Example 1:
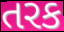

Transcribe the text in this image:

તરક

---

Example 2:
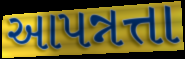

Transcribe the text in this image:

આપન્નત્તા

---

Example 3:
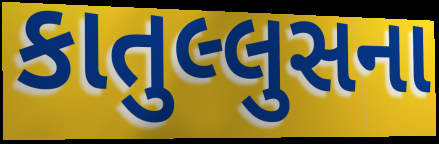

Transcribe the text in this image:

કાતુલ્લુસના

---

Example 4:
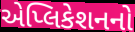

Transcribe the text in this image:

એપ્લિકેશનનો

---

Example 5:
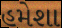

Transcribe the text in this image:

હમેશા